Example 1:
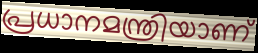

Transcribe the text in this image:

പ്രധാനമന്ത്രിയാണ്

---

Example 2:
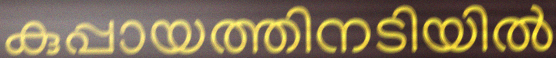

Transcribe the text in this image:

കുപ്പായത്തിനടിയിൽ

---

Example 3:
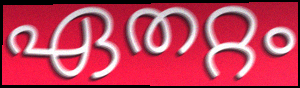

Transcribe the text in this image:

ഏതറ്റം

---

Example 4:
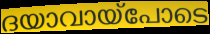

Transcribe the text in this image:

ദയാവായ്പോടെ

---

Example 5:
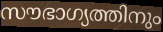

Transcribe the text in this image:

സൗഭാഗ്യത്തിനും